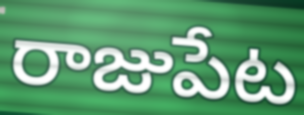
రాజుపేట